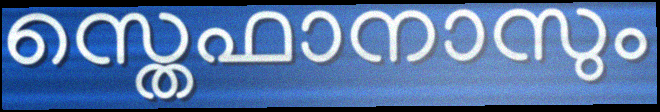
സ്തെഫാനാസും